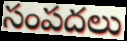
సంపదలు